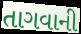
તાગવાની